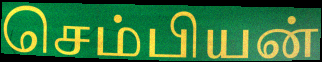
செம்பியன்